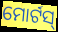
ମୋର୍ଟସ୍